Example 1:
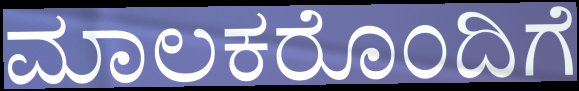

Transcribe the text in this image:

ಮಾಲಕರೊಂದಿಗೆ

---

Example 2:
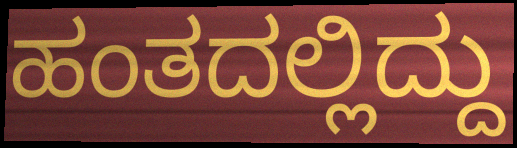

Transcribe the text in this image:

ಹಂತದಲ್ಲಿದ್ದು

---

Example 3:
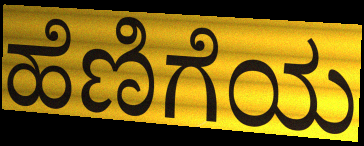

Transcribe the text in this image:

ಹೆಣಿಗೆಯ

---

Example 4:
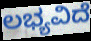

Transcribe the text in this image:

ಲಭ್ಯವಿದೆ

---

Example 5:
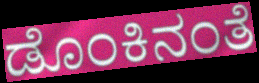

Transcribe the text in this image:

ಡೊಂಕಿನಂತೆ